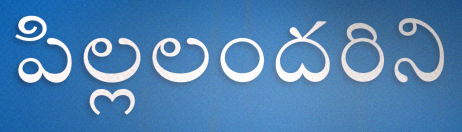
పిల్లలందరిని